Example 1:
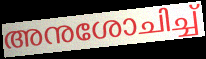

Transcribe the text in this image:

അനുശോചിച്ച്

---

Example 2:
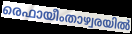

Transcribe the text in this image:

രെഫായീംതാഴ്വരയിൽ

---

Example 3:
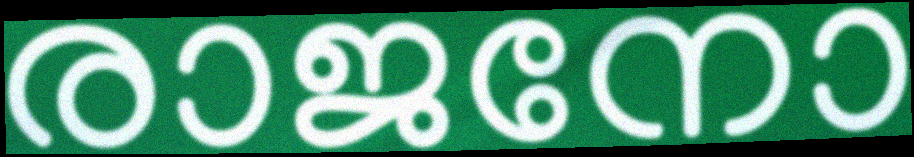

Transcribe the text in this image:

രാജനോ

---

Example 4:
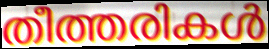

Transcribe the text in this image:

തീത്തരികൾ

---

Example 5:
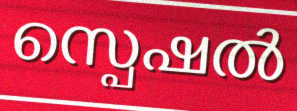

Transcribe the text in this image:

സ്പെഷൽ